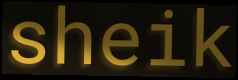
sheik